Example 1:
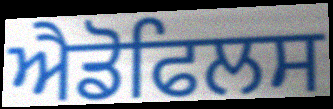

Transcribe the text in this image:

ਐਡੋਫਿਲਸ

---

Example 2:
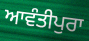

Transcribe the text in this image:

ਆਵੰਤੀਪੁਰਾ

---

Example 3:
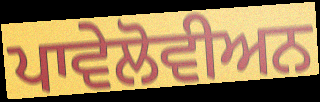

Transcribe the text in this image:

ਪਾਵੇਲੋਵੀਅਨ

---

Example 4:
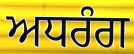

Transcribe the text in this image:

ਅਧਰੰਗ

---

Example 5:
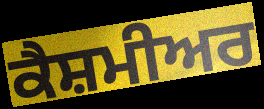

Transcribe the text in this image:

ਕੈਸ਼ਮੀਅਰ